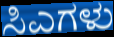
ಸಿಎಗಳು